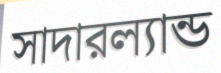
সাদারল্যান্ড